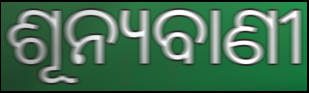
ଶୂନ୍ୟବାଣୀ